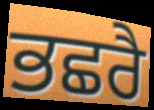
ਭਛਰੈ